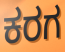
ಕರಗ